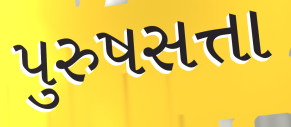
પુરુષસત્તા